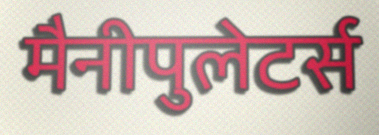
मैनीपुलेटर्स